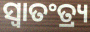
ସ୍ଵାତଂତ୍ର୍ୟ